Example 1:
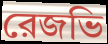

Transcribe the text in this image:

রেজভি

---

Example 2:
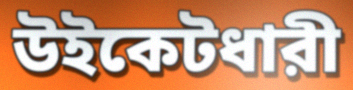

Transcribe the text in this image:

উইকেটধারী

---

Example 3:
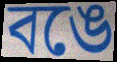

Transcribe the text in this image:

বঙে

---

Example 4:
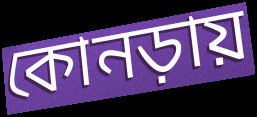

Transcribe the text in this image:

কোনড়ায়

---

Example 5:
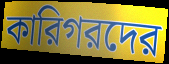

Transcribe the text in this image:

কারিগরদের